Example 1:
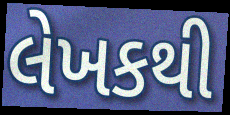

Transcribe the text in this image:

લેખકથી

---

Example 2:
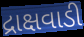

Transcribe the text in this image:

દ્રાક્ષવાડી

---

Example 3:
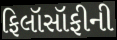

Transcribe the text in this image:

ફિલૉસૉફીની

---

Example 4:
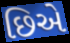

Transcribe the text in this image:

છિએ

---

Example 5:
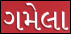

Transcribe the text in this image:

ગમેલા